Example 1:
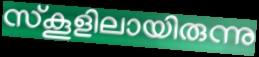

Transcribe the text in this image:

സ്കൂളിലായിരുന്നു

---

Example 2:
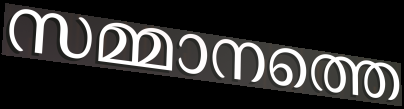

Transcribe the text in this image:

സമ്മാനത്തെ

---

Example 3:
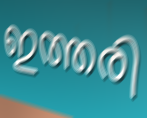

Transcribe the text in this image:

ഇത്തരി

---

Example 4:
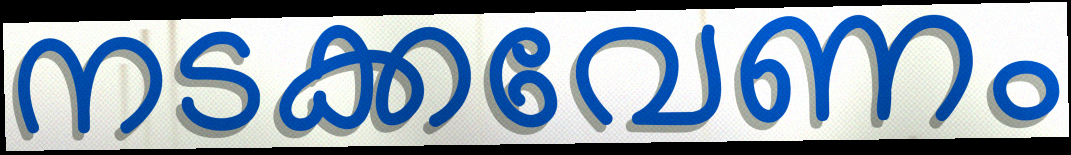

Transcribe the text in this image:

നടക്കവേണം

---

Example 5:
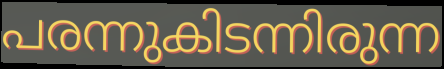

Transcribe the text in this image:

പരന്നുകിടന്നിരുന്ന